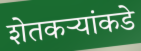
शेतकर्‍यांकडे